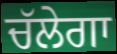
ਚੱਲੇਗਾ